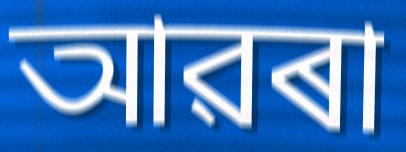
আৱৰা